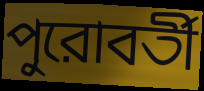
পুরোবর্তী